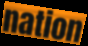
nation